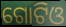
ଗୋଟିଓ